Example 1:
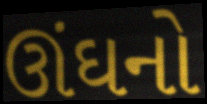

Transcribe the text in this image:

ઊંઘનો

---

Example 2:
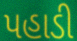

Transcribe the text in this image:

પહાડી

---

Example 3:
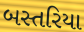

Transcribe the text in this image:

બસ્તરિયા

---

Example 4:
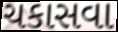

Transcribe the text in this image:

ચકાસવા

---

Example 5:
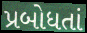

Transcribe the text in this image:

પ્રબોધતાં